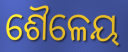
ଶୈଳେୟ